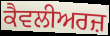
ਕੈਵਲੀਅਰਜ਼